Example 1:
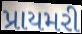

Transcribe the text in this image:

પ્રાયમરી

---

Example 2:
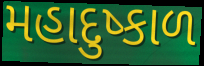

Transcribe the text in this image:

મહાદુષ્કાળ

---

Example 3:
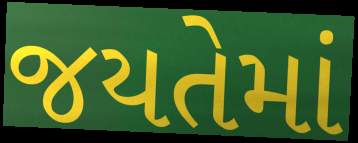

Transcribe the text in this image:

જયતેમાં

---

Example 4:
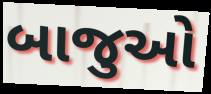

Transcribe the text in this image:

બાજુઓ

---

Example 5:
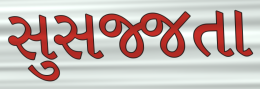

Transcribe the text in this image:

સુસજ્જતા